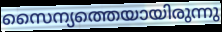
സൈന്യത്തെയായിരുന്നു